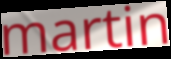
martin